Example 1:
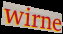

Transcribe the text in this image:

wirne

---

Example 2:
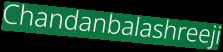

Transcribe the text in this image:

Chandanbalashreeji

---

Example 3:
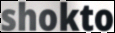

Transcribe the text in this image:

shokto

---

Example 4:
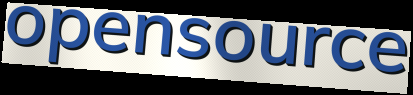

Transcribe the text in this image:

opensource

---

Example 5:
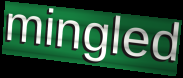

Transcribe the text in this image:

mingled